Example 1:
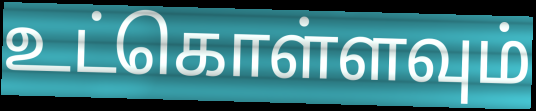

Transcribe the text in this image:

உட்கொள்ளவும்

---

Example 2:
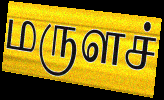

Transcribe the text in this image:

மருளச்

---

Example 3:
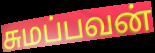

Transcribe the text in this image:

சுமப்பவன்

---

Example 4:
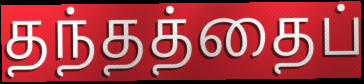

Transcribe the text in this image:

தந்தத்தைப்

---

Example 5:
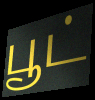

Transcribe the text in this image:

பூட்